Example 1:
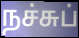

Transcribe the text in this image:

நச்சுப்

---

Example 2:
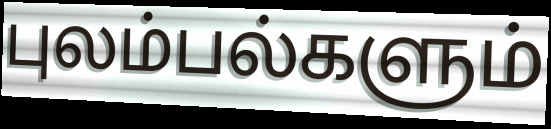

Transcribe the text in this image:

புலம்பல்களும்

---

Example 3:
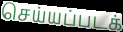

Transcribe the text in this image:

செய்யப்படக்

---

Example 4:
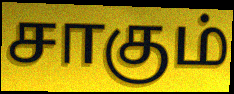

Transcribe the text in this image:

சாகும்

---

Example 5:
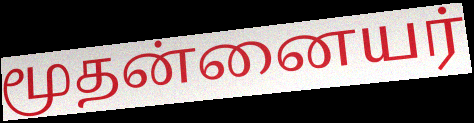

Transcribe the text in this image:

மூதன்னையர்